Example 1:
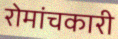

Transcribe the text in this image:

रोमांचकारी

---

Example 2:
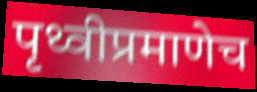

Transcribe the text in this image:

पृथ्वीप्रमाणेच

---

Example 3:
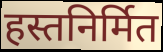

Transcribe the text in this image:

हस्तनिर्मित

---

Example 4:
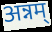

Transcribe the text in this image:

अन्नम्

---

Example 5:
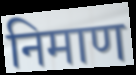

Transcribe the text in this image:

निमाण